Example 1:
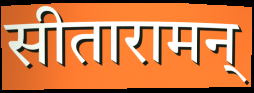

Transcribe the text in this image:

सीतारामन्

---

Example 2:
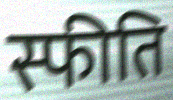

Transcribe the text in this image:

स्फीति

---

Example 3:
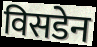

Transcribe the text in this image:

विसडेन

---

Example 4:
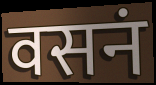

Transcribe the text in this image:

वसनं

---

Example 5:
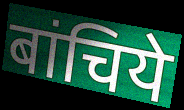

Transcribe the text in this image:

बांचिये